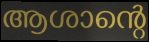
ആശാന്റെ